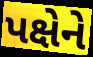
પક્ષેને